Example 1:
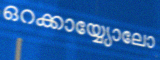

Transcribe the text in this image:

ഒറക്കായ്യ്യോലോ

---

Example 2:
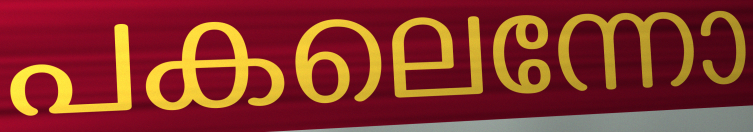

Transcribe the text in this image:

പകലെന്നോ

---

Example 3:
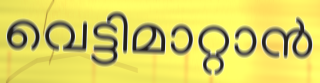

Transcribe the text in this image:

വെട്ടിമാറ്റാൻ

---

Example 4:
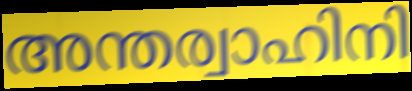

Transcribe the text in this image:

അന്തര്വാഹിനി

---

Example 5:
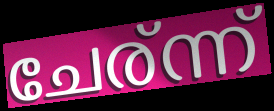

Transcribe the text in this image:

ചേര്ന്ന്